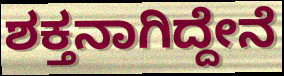
ಶಕ್ತನಾಗಿದ್ದೇನೆ